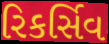
રિકર્સિવ